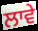
ਲਾਵੇ